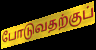
போடுவதற்குப்